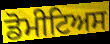
ਡੋਮੀਟਿਅਸ